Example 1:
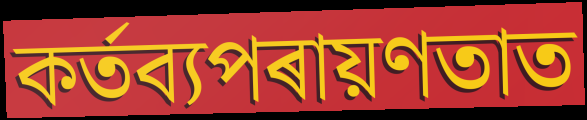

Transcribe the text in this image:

কৰ্তব্যপৰায়ণতাত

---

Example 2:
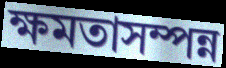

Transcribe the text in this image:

ক্ষমতাসম্পন্ন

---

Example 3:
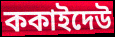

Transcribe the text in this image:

ককাইদেউ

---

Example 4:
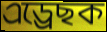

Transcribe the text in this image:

এড্ৰেছক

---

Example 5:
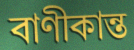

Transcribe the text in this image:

বাণীকান্ত